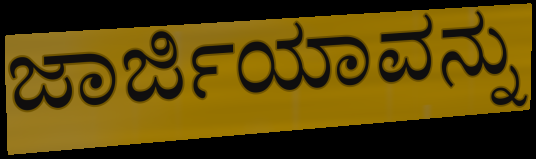
ಜಾರ್ಜಿಯಾವನ್ನು